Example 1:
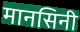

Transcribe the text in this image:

मानसिनी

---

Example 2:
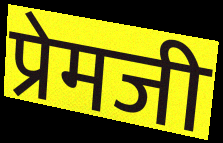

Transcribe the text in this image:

प्रेमजी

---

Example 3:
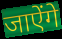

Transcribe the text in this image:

जाऐंगे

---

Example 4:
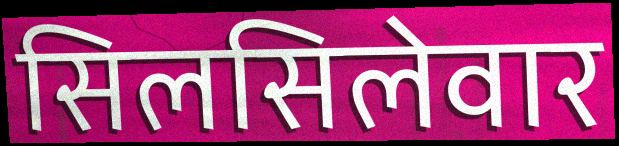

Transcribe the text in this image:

सिलसिलेवार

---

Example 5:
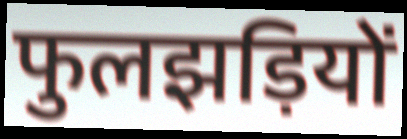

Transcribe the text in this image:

फुलझड़ियों